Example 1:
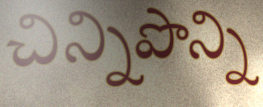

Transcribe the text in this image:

చిన్నిపొన్ని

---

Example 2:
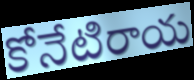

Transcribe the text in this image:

కోనేటిరాయ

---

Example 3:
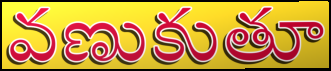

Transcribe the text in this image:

వణుకుతూ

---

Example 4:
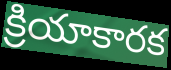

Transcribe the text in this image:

క్రియాకారక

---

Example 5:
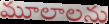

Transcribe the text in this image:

మూలాలను